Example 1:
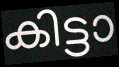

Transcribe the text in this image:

കിട്ടാ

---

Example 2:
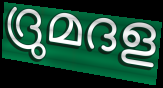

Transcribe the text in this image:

ദ്രുമദള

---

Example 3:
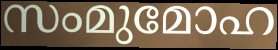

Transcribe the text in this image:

സംമുമോഹ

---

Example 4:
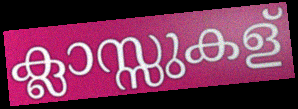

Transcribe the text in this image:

ക്ലാസ്സുകള്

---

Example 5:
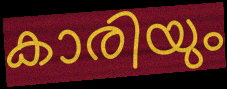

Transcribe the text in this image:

കാരിയും